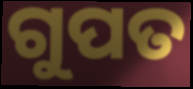
ଗୁପତ